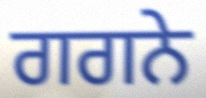
ਗਗਨੇ